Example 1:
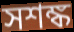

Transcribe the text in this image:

সশঙ্ক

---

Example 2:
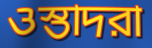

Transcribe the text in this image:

ওস্তাদরা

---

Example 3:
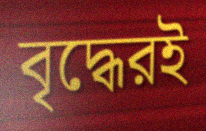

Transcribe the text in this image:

বৃদ্ধেরই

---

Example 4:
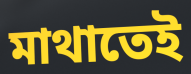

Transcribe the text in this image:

মাথাতেই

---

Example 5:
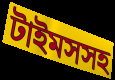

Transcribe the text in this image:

টাইমসসহ